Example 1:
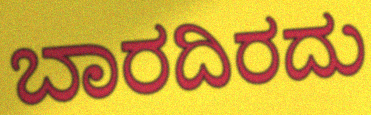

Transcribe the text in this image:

ಬಾರದಿರದು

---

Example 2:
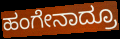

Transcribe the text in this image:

ಹಂಗೇನಾದ್ರೂ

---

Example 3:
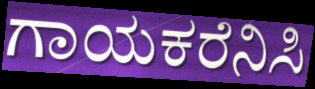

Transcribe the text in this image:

ಗಾಯಕರೆನಿಸಿ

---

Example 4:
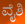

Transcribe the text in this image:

ವೈಶಿ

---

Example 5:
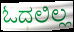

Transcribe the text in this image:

ಓದಲಿಲ್ಲ